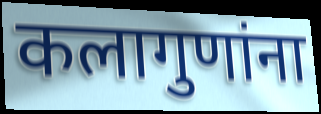
कलागुणांना